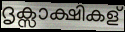
ദൃക്സാക്ഷികള്